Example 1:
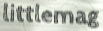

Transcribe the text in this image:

littlemag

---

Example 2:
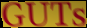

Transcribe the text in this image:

GUTs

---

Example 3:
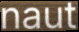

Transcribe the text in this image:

naut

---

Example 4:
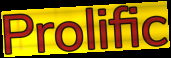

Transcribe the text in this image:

Prolific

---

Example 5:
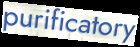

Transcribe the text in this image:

purificatory